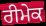
ਰੀਮੇਕ